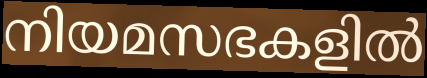
നിയമസഭകളിൽ